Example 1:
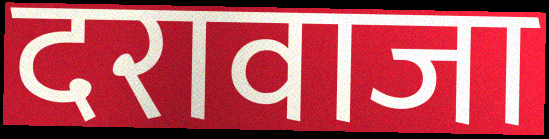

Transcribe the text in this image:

दरावाजा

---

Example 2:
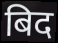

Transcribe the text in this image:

बिद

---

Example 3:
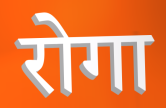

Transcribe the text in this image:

रोगा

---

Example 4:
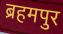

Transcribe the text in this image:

ब्रहमपुर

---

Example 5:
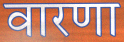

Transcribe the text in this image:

वारणा